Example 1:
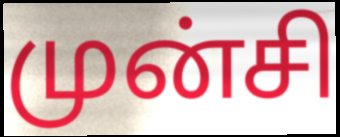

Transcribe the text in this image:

முன்சி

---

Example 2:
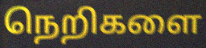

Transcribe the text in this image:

நெறிகளை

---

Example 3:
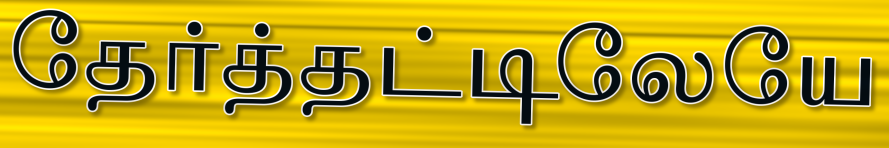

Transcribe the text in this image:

தேர்த்தட்டிலேயே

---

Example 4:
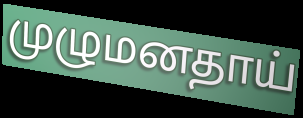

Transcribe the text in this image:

முழுமனதாய்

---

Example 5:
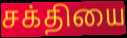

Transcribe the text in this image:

சக்தியை